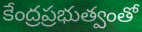
కేంద్రప్రభుత్వంతో